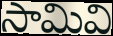
సామివి